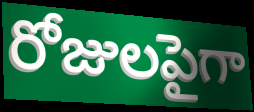
రోజులపైగా